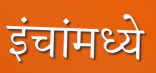
इंचांमध्ये